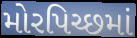
મોરપિચ્છમાં